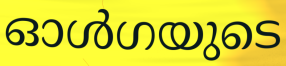
ഓൾഗയുടെ